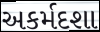
અકર્મદશા